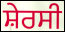
ਸ਼ੇਰਸੀ